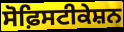
ਸੋਫ਼ਿਸਟੀਕੇਸ਼ਨ